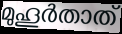
മുഹൂർതാത്